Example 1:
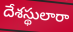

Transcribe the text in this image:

దేశస్థులారా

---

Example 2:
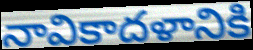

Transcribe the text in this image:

నావికాదళానికి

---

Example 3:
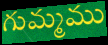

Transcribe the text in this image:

గుమ్మము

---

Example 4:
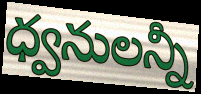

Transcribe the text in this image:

ధ్వనులన్నీ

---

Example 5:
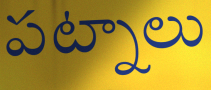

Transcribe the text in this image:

పట్నాలు